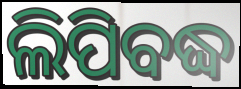
ଲିପିବଦ୍ଧ